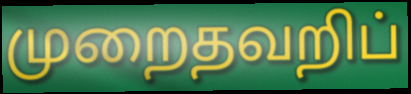
முறைதவறிப்